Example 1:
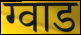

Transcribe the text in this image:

ग्वाड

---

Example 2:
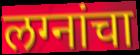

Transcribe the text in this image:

लग्नांचा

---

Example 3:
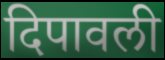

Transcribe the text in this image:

दिपावली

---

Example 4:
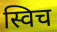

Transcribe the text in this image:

स्विच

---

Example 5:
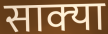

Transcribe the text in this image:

साक्या